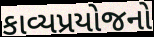
કાવ્યપ્રયોજનો